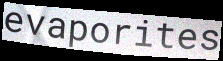
evaporites